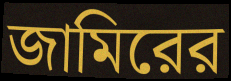
জামিরের